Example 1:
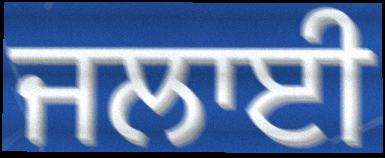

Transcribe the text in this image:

ਜਲਾਈ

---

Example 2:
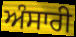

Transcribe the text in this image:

ਅੰਸਾਰੀ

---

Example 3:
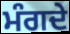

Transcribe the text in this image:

ਮੰਗਦੇ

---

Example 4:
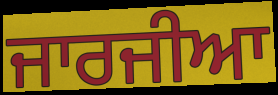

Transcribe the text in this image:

ਜਾਰਜੀਆ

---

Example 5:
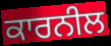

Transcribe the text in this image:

ਕਾਰਨੀਲ